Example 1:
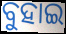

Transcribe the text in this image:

ବୁହାଇ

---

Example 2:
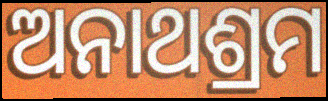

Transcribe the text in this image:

ଅନାଥଶ୍ରମ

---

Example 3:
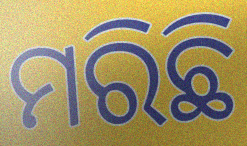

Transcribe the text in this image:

ମରିଛି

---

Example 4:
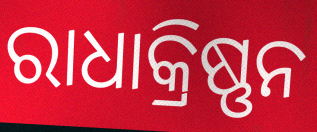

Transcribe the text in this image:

ରାଧାକ୍ରିଷ୍ଣନ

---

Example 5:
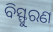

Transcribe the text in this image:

ବିସ୍ଫୁରଣ